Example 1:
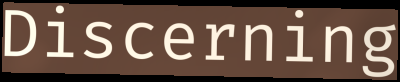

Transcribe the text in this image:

Discerning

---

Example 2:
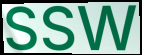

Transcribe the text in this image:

SSW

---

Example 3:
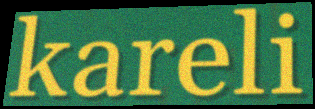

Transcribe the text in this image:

kareli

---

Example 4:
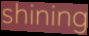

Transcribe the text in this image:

shining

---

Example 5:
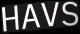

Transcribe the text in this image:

HAVS